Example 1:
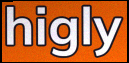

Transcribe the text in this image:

higly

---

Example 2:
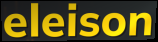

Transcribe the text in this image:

eleison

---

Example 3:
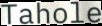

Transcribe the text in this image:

Tahole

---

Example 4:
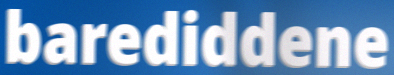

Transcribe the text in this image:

barediddene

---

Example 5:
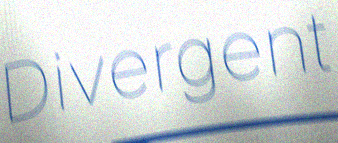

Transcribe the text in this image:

Divergent